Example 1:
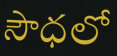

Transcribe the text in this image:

సౌధలో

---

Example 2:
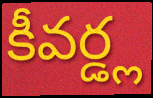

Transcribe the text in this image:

కీవర్డ్ల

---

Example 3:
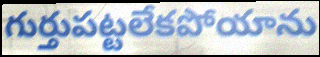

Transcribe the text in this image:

గుర్తుపట్టలేకపోయాను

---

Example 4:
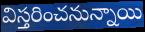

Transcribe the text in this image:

విస్తరించనున్నాయి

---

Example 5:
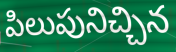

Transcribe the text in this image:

పిలుపునిచ్చిన